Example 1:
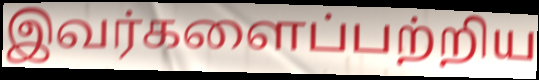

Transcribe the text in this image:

இவர்களைப்பற்றிய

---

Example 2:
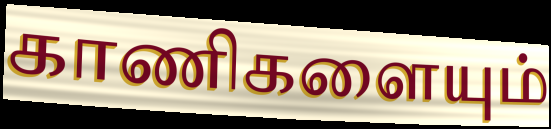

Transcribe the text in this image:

காணிகளையும்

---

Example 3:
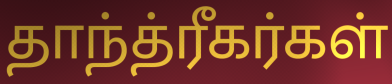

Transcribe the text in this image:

தாந்த்ரீகர்கள்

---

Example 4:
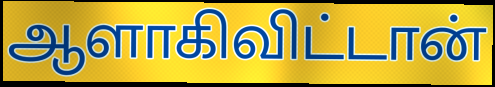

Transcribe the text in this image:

ஆளாகிவிட்டான்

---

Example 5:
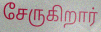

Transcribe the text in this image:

சேருகிறார்